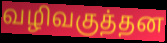
வழிவகுத்தன